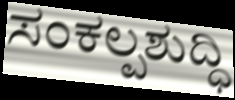
ಸಂಕಲ್ಪಶುದ್ಧಿ